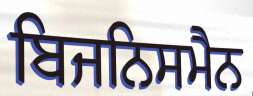
ਬਿਜਨਿਸਮੈਨ